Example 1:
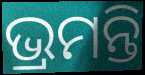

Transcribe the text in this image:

ଭ୍ରମନ୍ତି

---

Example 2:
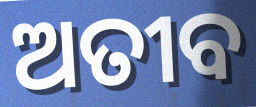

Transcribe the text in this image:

ଅତୀବ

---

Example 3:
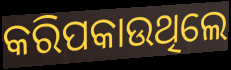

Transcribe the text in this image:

କରିପକାଉଥିଲେ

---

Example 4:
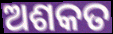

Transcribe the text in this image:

ଅଶକତ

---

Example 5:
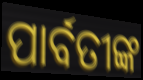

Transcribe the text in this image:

ପାର୍ବତୀଙ୍କ